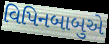
વિપિનબાબુએ